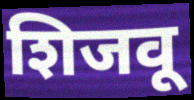
शिजवू